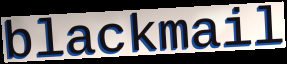
blackmail